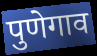
पुणेगाव